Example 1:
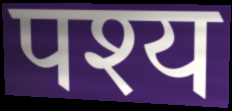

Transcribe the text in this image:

पश्य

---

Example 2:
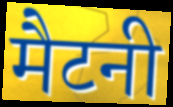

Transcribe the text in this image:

मैटनी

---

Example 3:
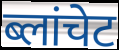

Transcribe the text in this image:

ब्लांचेट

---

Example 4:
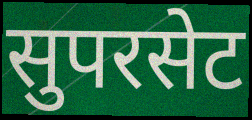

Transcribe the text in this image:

सुपरसेट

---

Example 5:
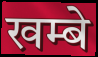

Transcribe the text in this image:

खम्बे